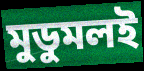
মুডুমলই